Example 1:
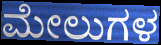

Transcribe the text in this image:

ಮೇಲುಗಳ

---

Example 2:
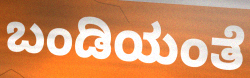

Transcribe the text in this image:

ಬಂಡಿಯಂತೆ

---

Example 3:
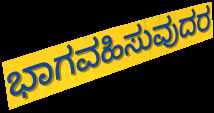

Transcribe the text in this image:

ಭಾಗವಹಿಸುವುದರ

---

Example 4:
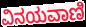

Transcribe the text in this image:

ವಿನಯವಾಣಿ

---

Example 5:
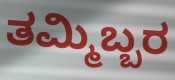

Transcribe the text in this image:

ತಮ್ಮಿಬ್ಬರ